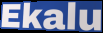
Ekalu